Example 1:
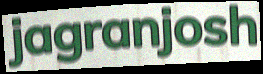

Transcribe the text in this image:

jagranjosh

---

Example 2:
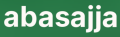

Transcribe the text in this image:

abasajja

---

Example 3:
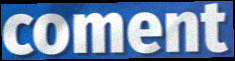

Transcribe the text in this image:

coment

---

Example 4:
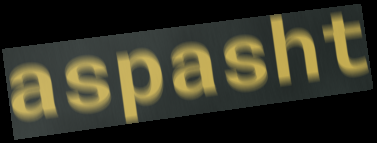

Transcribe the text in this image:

aspasht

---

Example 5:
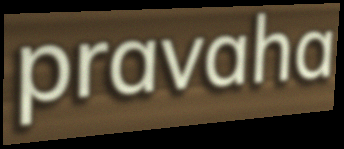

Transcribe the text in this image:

pravaha